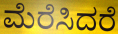
ಮೆರೆಸಿದರೆ